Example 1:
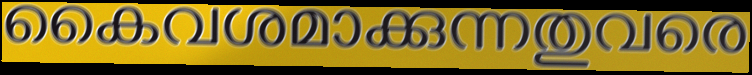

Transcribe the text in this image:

കൈവശമാക്കുന്നതുവരെ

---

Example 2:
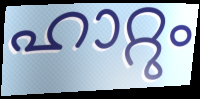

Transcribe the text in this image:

ഹാറ്റും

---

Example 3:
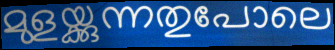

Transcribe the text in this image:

മുളയ്ക്കുന്നതുപോലെ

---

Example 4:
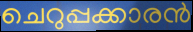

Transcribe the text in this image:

ചെറുപ്പക്കാരൻ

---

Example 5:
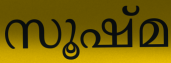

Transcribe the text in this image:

സൂഷ്മ